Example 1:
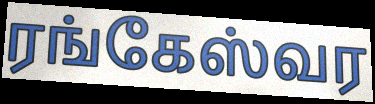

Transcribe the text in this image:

ரங்கேஸ்வர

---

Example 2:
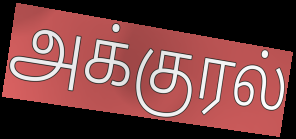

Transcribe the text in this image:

அக்குரல்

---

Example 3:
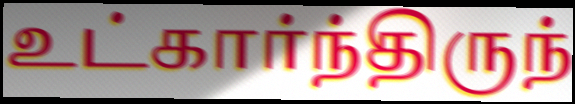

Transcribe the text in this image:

உட்கார்ந்திருந்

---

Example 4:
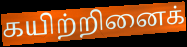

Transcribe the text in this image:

கயிற்றினைக்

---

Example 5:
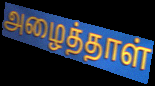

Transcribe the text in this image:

அழைத்தாள்